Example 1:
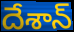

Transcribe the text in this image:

దేశాన్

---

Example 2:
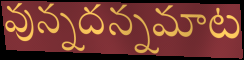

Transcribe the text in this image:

వున్నదన్నమాట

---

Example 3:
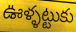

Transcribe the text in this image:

ఊళ్ళట్టుకు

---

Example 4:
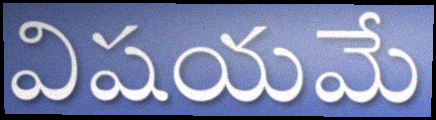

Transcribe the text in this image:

విషయమే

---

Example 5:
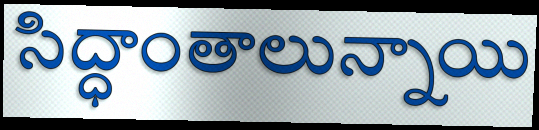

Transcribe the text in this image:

సిద్ధాంతాలున్నాయి